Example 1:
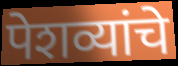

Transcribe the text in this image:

पेशव्यांचे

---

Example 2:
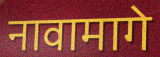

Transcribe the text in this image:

नावामागे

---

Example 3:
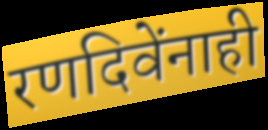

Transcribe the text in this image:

रणदिवेंनाही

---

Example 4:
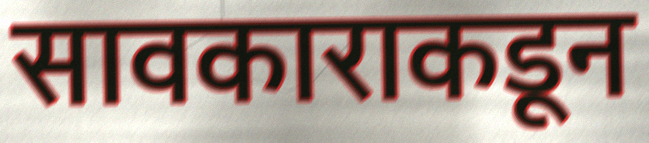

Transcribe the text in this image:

सावकाराकडून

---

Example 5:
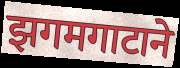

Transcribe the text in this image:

झगमगाटाने